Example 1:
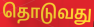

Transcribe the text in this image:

தொடுவது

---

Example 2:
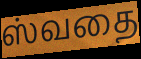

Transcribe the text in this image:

ஸ்வதை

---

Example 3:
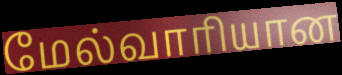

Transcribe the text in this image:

மேல்வாரியான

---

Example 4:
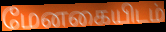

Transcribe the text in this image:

மேனகையிடம்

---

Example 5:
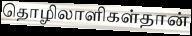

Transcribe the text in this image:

தொழிலாளிகள்தான்